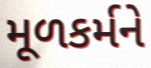
મૂળકર્મને